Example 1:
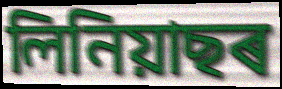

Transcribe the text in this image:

লিনিয়াছৰ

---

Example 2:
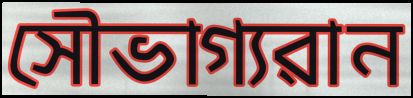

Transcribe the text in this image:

সৌভাগ্যৱান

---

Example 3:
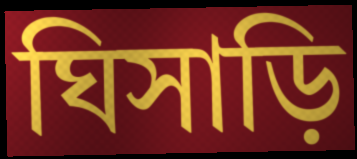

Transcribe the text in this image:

ঘিসাড়ি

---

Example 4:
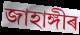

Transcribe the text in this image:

জাহাঙ্গীৰ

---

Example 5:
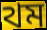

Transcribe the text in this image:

থম